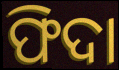
ଫିଦା